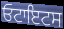
ਓਟਾਇਟਸ